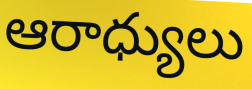
ఆరాధ్యులు